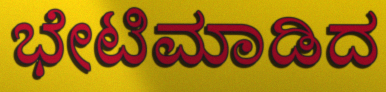
ಭೇಟಿಮಾಡಿದ